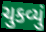
ચુકવ્યું